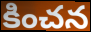
కించన